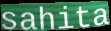
sahita